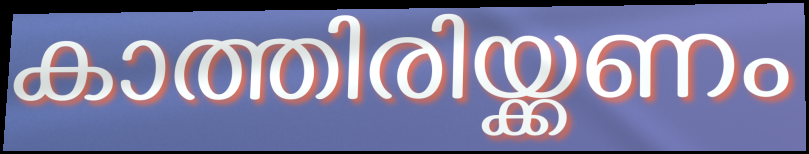
കാത്തിരിയ്ക്കണം